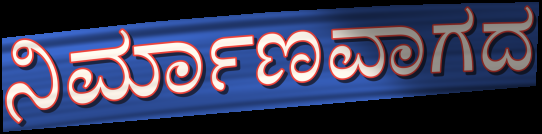
ನಿರ್ಮಾಣವಾಗದ